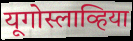
यूगोस्लाव्हिया